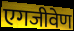
एगजीवेण